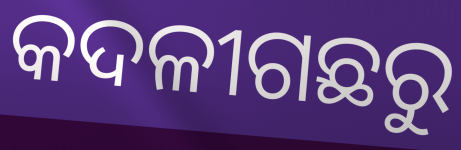
କଦଳୀଗଛରୁ